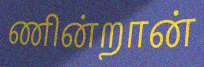
ணின்றான்